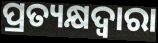
ପ୍ରତ୍ୟକ୍ଷଦ୍ବାରା